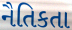
નૈતિકતા